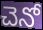
చెనో